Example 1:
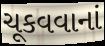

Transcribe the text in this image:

ચૂકવવાનાં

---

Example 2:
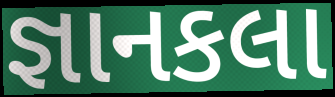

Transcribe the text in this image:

જ્ઞાનકલા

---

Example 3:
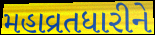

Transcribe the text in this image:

મહાવ્રતધારીને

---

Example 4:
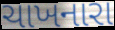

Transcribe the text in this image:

ચાખનારા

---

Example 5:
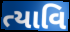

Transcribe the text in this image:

ત્યાવિ